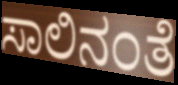
ಸಾಲಿನಂತೆ